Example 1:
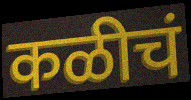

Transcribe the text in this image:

कळीचं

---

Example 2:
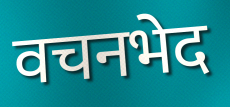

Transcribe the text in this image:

वचनभेद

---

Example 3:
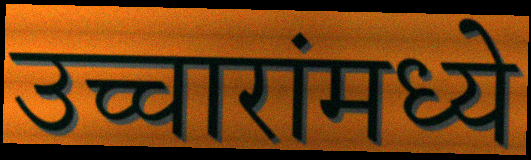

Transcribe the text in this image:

उच्चारांमध्ये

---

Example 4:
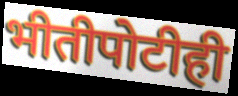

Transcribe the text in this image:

भीतीपोटीही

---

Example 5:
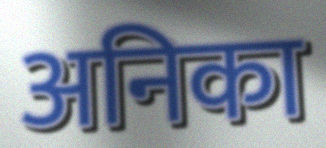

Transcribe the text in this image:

अनिका